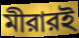
মীরারই